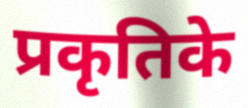
प्रकृतिके